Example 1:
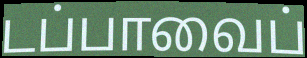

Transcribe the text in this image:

டப்பாவைப்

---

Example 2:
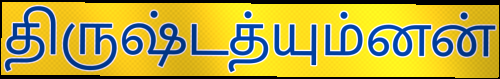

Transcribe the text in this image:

திருஷ்டத்யும்னன்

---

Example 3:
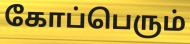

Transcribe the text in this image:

கோப்பெரும்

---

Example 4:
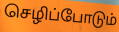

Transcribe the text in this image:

செழிப்போடும்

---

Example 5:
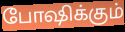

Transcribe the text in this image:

போஷிக்கும்